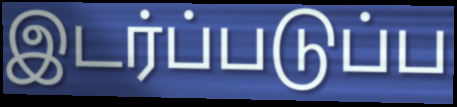
இடர்ப்படுப்ப